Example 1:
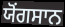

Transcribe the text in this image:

ਯੋਂਗਸਾਨ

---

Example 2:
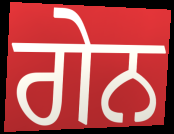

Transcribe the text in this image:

ਗੇਨ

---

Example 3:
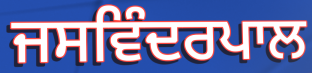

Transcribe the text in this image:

ਜਸਵਿੰਦਰਪਾਲ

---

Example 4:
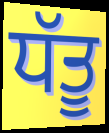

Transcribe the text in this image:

ਧੱਤੂ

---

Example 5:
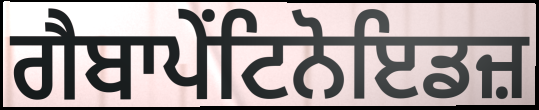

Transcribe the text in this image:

ਗੈਬਾਪੇਂਟਿਨੋਇਡਜ਼